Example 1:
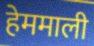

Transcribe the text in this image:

हेममाली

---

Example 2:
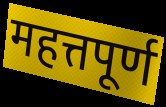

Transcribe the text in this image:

महत्तपूर्ण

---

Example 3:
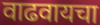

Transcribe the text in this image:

वाढवायचा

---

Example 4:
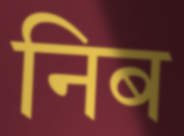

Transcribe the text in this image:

निब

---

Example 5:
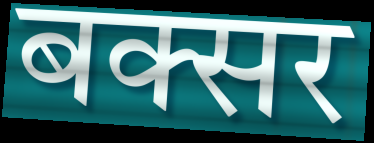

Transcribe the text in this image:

बक्‍सर